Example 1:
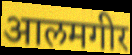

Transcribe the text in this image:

आलमगीर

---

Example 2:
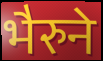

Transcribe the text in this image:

भैरुने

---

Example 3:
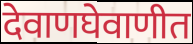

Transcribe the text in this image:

देवाणघेवाणीत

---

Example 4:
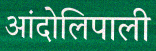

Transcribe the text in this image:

आंदोलिपाली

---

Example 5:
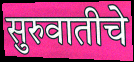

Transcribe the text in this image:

सुरुवातीचे